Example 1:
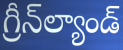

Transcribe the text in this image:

గ్రీన్‌ల్యాండ్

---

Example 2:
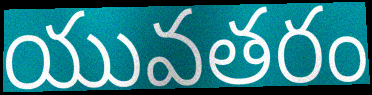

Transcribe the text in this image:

యువతరం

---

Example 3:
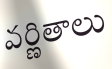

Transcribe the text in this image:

వర్ణితాలు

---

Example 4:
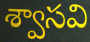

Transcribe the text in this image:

శ్వాసవి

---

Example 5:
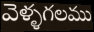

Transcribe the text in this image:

వెళ్ళగలము